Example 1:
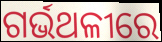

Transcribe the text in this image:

ଗର୍ଭଥଳୀରେ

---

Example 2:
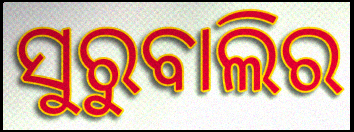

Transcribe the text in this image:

ସୁରୁବାଲିର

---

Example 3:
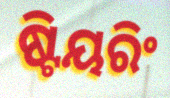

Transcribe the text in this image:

ଷ୍ଟିୟରିଂ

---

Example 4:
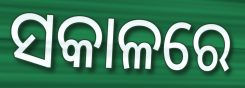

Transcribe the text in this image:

ସକାଳରେ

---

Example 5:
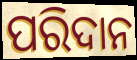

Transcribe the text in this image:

ପରିଦାନ